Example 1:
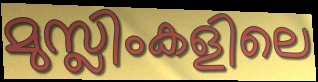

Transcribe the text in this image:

മുസ്ലിംകളിലെ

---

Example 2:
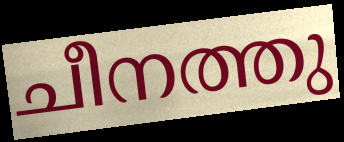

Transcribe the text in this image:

ചീനത്തു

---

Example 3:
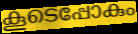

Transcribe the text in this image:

കൂടെപ്പോകും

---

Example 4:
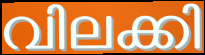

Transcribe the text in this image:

വിലക്കി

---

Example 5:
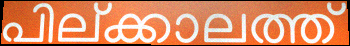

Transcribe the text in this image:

പില്ക്കാലത്ത്